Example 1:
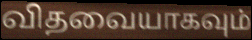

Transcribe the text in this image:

விதவையாகவும்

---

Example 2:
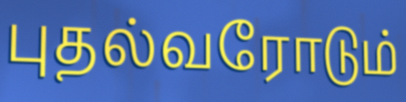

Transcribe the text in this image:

புதல்வரோடும்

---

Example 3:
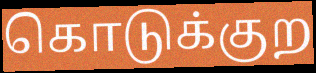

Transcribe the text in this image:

கொடுக்குற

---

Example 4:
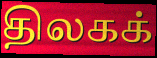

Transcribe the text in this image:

திலகக்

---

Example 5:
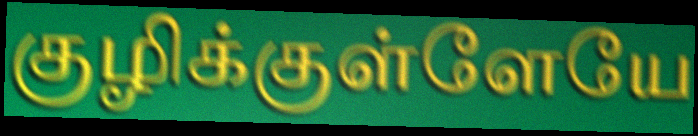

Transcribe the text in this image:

குழிக்குள்ளேயே